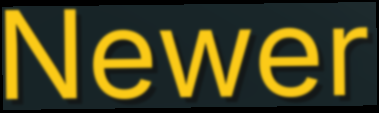
Newer